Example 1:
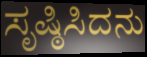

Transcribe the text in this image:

ಸೃಷ್ಠಿಸಿದನು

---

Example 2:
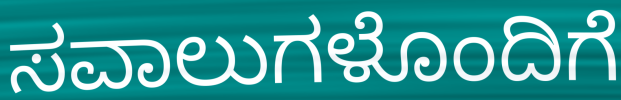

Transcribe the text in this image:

ಸವಾಲುಗಳೊಂದಿಗೆ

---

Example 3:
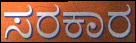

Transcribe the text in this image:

ಸರಕಾರ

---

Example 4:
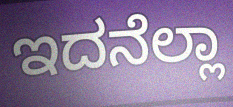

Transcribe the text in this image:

ಇದನೆಲ್ಲಾ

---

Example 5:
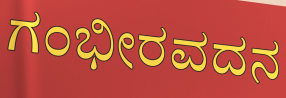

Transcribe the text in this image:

ಗಂಭೀರವದನ